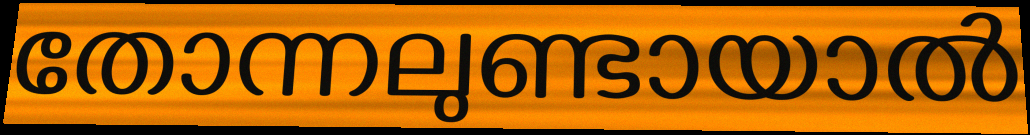
തോന്നലുണ്ടായാൽ